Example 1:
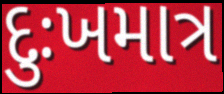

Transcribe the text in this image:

દુઃખમાત્ર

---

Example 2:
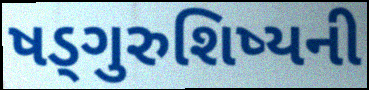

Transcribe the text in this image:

ષડ્ગુરુશિષ્યની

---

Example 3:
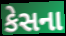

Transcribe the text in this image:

કેસના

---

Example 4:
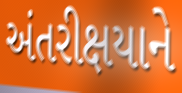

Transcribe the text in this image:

અંતરીક્ષયાને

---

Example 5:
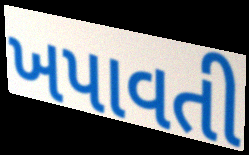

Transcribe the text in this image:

ખપાવતી